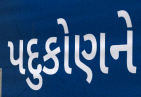
પદુકોણને